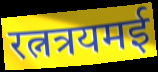
रत्नत्रयमई